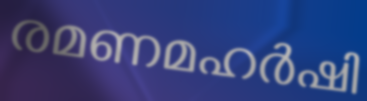
രമണമഹർഷി